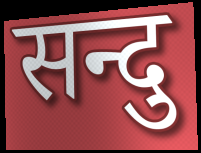
सन्दु